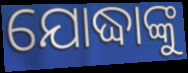
ଯୋଦ୍ଧାଙ୍କୁ